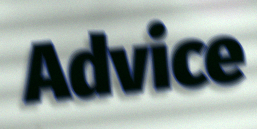
Advice